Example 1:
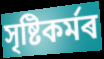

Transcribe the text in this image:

সৃষ্টিকৰ্মৰ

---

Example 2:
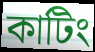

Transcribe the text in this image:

কাটিং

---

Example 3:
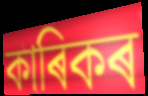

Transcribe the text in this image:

কাৰিকৰ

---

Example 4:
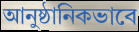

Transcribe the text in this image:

আনুষ্ঠানিকভাবে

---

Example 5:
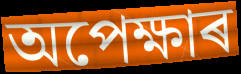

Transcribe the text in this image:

অপেক্ষাৰ